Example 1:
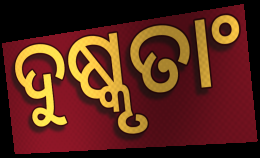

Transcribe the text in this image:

ଦୁଷ୍କୃତାଂ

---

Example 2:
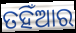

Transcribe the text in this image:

ତହିଁଆର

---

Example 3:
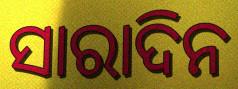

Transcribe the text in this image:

ସାରାଦିନ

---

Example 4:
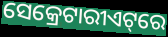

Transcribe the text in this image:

ସେକ୍ରେଟାରୀଏଟ୍‌ରେ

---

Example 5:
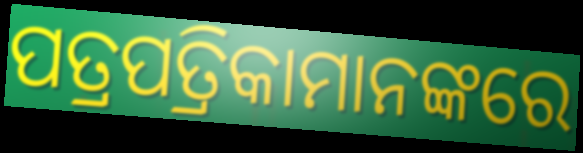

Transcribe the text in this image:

ପତ୍ରପତ୍ରିକାମାନଙ୍କରେ